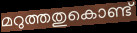
മറുത്തതുകൊണ്ട്